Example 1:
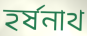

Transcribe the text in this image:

হর্ষনাথ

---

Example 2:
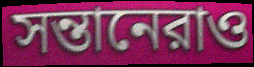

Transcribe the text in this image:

সন্তানেরাও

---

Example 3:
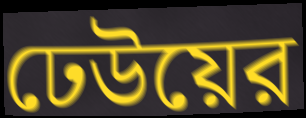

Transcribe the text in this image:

ঢেউয়ের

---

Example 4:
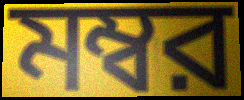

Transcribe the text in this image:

মম্বর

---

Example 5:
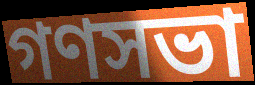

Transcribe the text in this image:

গণসভা